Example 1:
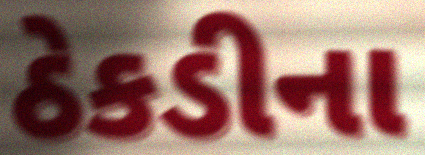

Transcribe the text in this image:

ઠેકડીના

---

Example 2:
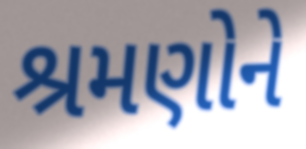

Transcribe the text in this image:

શ્રમણોને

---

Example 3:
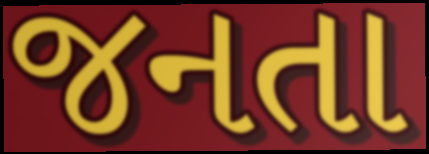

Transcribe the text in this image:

જનતા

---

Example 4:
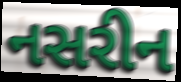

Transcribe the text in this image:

નસરીન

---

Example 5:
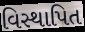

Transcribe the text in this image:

વિસ્થાપિત